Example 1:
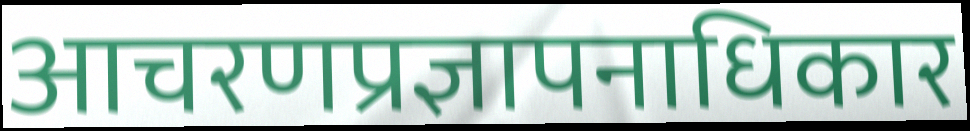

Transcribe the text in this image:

आचरणप्रज्ञापनाधिकार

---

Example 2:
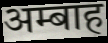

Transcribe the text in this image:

अम्बाह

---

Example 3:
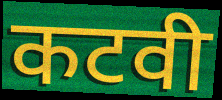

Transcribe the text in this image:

कटवी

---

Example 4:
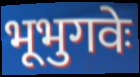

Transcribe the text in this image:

भूभुगवेः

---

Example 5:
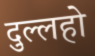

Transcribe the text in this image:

दुल्लहो